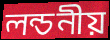
লন্ডনীয়